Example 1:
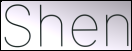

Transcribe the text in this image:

Shen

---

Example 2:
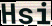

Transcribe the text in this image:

Hsi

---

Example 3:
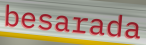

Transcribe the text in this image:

besarada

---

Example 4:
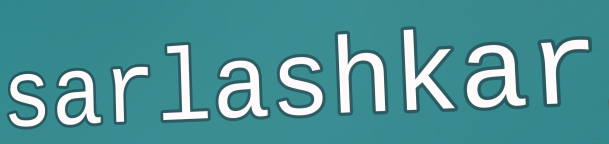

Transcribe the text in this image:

sarlashkar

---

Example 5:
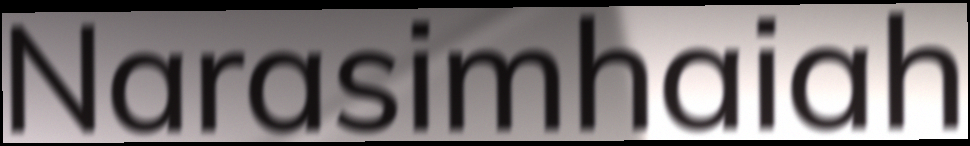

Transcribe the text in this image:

Narasimhaiah